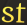
st